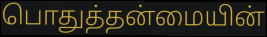
பொதுத்தன்மையின்